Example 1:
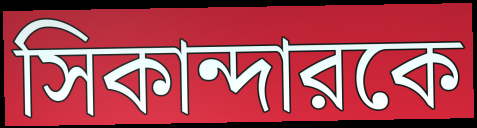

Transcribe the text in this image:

সিকান্দারকে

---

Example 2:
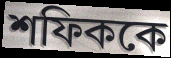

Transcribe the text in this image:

শফিককে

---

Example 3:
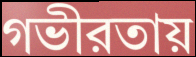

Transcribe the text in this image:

গভীরতায়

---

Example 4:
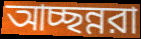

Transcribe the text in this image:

আচ্ছন্নরা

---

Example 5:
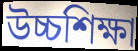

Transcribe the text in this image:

উচ্চশিক্ষা